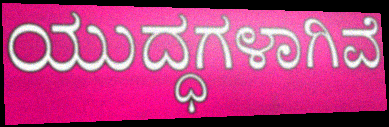
ಯುದ್ಧಗಳಾಗಿವೆ